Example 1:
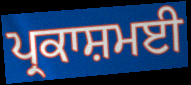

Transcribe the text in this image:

ਪ੍ਰਕਾਸ਼ਮਈ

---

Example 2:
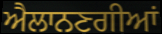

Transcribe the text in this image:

ਐਲਾਨਣਗੀਆਂ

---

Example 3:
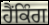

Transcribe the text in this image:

ਹੈਂਕਿੰਗ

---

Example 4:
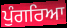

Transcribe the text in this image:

ਪੁੰਗਰਿਆ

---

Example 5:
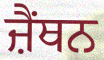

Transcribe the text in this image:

ਜ਼ੈਂਥਨ